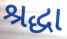
શ્રદ્ધા